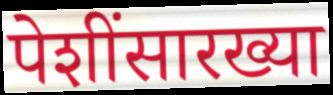
पेशींसारख्या